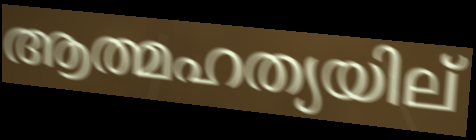
ആത്മഹത്യയില്